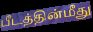
பீடத்தின்மீது